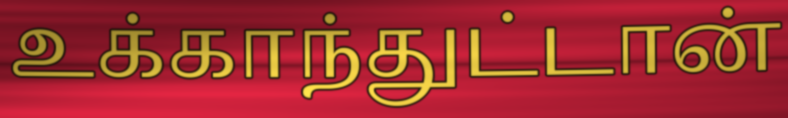
உக்காந்துட்டான்